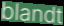
blandt